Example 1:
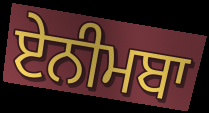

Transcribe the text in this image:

ਏਨੀਮਬਾ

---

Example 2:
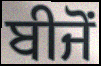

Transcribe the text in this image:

ਬੀਜੋਂ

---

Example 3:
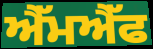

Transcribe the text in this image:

ਐੱਮਐੱਫ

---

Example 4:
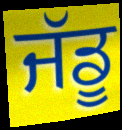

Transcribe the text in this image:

ਜੱਡੂ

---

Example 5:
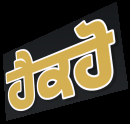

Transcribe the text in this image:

ਹੈਕਹੋ